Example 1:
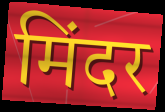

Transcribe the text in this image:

मिंदर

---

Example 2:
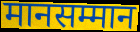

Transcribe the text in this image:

मानसम्मान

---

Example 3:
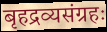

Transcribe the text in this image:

बृहद्रव्यसंग्रहः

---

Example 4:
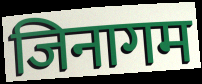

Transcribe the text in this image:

जिनागम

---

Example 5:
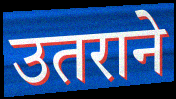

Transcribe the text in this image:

उतराने